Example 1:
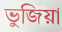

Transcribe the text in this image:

ভুজিয়া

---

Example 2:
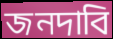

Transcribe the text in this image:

জনদাবি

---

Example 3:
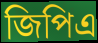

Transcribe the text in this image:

জিপিএ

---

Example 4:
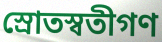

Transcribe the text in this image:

স্রোতস্বতীগণ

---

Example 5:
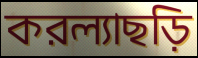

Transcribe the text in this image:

করল্যাছড়ি